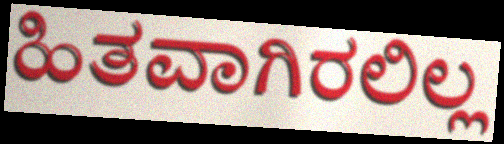
ಹಿತವಾಗಿರಲಿಲ್ಲ